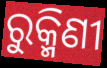
ରୁକ୍ମିଣୀ